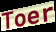
Toer